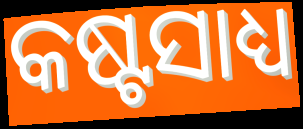
କଷ୍ଟସାଧ୍ଯ